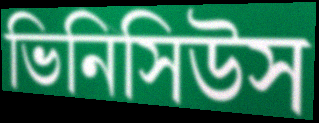
ভিনিসিউস